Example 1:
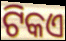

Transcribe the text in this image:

ଟିକଏ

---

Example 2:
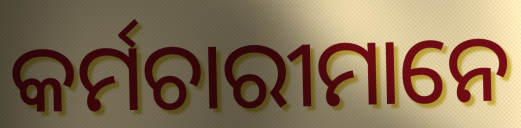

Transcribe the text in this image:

କର୍ମଚାରୀମାନେ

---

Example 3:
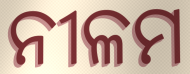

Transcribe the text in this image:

ନୀଳମ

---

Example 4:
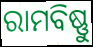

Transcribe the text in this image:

ରାମବିଷ୍ଣୁ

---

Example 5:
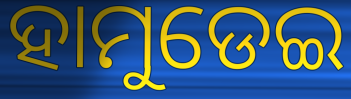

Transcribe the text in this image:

ହାମୁଡେଇ